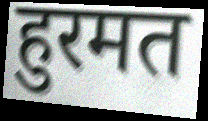
हुरमत